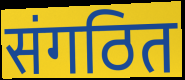
संगठित